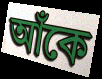
আঁকে